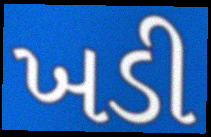
ખડી